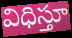
విధిస్తూ